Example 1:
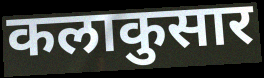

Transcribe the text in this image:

कलाकुसार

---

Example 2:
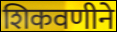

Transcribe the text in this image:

शिकवणीने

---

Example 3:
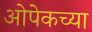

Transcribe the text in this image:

ओपेकच्या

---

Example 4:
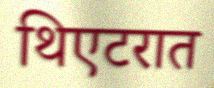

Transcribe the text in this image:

थिएटरात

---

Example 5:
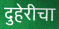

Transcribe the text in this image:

दुहेरीचा